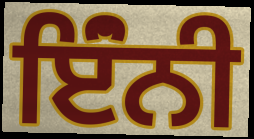
ਇੰਂਨੀ